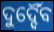
ଦୁର୍ଦ୍ଦୈବ